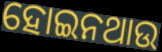
ହୋଇନଥାଉ